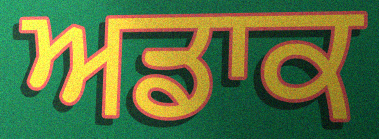
ਅਡਾਕ